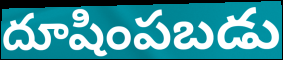
దూషింపబడు